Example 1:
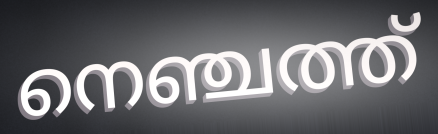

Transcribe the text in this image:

നെഞ്ചത്ത്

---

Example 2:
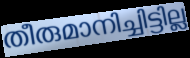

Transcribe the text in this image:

തീരുമാനിച്ചിട്ടില്ല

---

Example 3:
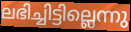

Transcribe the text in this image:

ലഭിച്ചിട്ടില്ലെന്നു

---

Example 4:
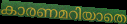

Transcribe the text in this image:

കാരണമറിയാതെ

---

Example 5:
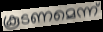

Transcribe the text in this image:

കൂടണമെന്ന്